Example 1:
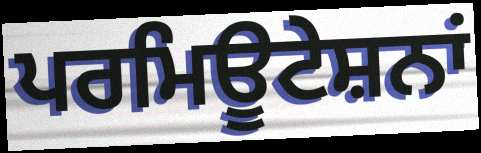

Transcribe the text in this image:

ਪਰਮਿਊਟੇਸ਼ਨਾਂ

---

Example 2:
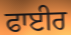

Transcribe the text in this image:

ਫਾਈਰ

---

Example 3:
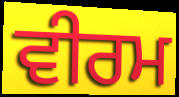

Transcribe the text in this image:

ਵੀਰਮ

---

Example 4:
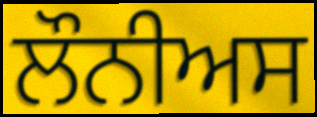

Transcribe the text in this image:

ਲੌਨੀਅਸ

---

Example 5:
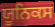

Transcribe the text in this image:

ਯੂਨਿਕਸ